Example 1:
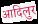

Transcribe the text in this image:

आदिलुर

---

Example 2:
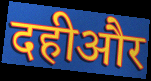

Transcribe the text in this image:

दहीऔर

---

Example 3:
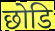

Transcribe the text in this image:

छोडि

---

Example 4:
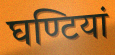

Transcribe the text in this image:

घण्टियां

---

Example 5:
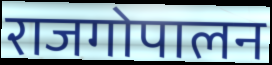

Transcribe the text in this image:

राजगोपालन